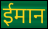
ईमान